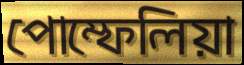
পোম্ফেলিয়া